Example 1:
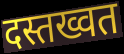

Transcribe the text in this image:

दस्तख्वत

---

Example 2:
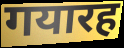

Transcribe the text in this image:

गयारह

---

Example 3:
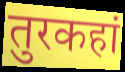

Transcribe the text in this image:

तुरकहां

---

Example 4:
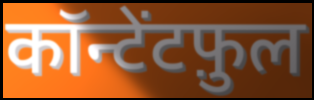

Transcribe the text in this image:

कॉन्टेंटफ़ुल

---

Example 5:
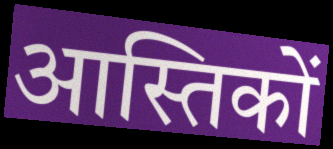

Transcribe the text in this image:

आस्तिकों